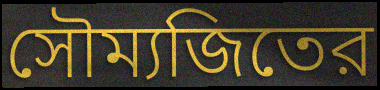
সৌম্যজিতের